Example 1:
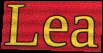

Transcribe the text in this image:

Lea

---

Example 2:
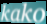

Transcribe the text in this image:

kako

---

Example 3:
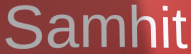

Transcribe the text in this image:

Samhit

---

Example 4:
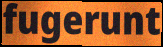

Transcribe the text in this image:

fugerunt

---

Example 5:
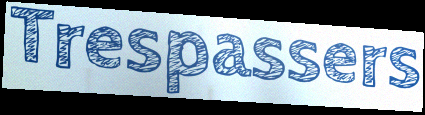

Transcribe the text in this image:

Trespassers